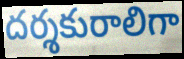
దర్శకురాలిగా